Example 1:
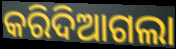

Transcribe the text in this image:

କରିଦିଆଗଲା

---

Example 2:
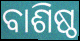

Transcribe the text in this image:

ବାଶିଷ୍ଠ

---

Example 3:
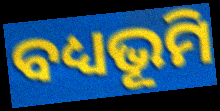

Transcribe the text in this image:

ବଧ୍ୟଭୂମି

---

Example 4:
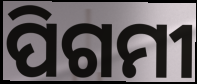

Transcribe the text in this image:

ପିଗମୀ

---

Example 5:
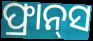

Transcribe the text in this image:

ଫ୍ରାନ୍‌ସ